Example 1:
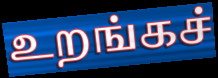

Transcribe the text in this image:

உறங்கச்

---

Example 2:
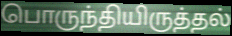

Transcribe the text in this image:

பொருந்தியிருத்தல்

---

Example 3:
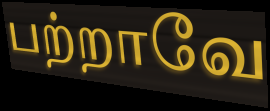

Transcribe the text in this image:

பற்றாவே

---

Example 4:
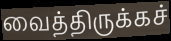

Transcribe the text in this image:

வைத்திருக்கச்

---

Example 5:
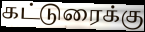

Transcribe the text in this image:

கட்டுரைக்கு